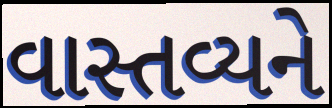
વાસ્તવ્યને